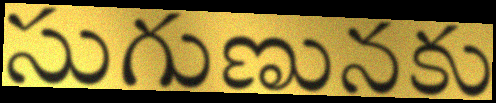
సుగుణునకు